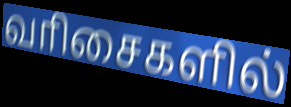
வரிசைகளில்